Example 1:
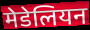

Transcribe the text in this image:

मेडेलियन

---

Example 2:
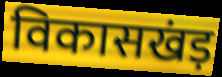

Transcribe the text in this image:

विकासखंड़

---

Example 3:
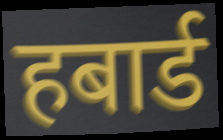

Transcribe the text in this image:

हबार्ड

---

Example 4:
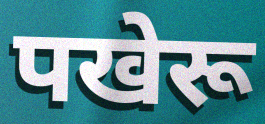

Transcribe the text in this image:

पखेरू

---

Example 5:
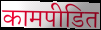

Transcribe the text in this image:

कामपीडित